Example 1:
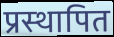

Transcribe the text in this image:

प्रस्थापित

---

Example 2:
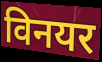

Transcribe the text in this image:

विनयर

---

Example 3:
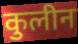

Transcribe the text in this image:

कुलीन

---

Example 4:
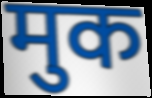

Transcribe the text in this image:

मुक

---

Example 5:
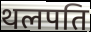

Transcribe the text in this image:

थलपति